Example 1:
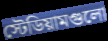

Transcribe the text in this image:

স্টেডিয়ামগুলো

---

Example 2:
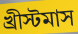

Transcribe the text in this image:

খ্রীস্টমাস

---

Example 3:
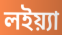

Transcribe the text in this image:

লইয়্যা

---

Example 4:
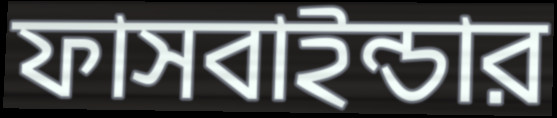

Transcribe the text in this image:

ফাসবাইন্ডার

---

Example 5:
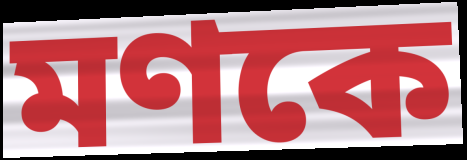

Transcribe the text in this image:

মণকে